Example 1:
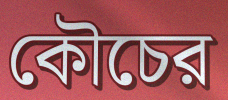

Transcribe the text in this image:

কৌচের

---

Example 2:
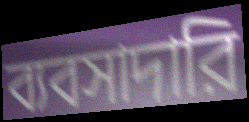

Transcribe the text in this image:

ব্যবসাদারি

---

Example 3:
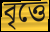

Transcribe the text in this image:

বৃত্তে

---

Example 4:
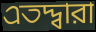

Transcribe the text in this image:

এতদ্দ্বারা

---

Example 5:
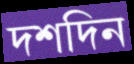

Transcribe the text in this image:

দশদিন